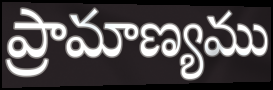
ప్రామాణ్యము